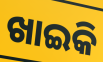
ଖାଇକି